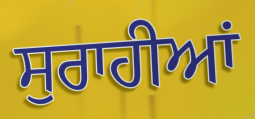
ਸੁਰਾਹੀਆਂ